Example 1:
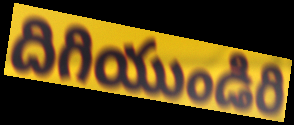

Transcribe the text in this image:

దిగియుండిరి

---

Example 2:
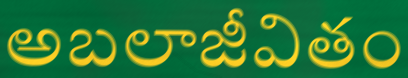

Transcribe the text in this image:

అబలాజీవితం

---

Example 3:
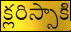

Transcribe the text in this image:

క్లరిస్సాకి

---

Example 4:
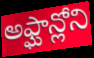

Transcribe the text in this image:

అఫ్ఘాన్లోని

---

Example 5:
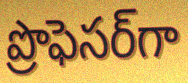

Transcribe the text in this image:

ప్రొఫెసర్‌గా